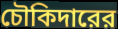
চৌকিদারের